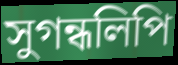
সুগন্ধলিপি